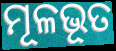
ମୂଳଭୂତ